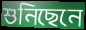
শুনিছেনে